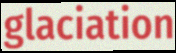
glaciation